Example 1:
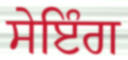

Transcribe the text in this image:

ਸੇਇੰਗ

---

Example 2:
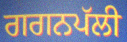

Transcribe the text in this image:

ਗਗਨਪੱਲੀ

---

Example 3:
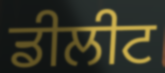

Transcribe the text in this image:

ਡੀਲੀਟ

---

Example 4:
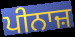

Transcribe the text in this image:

ਪੀਨਾਜ਼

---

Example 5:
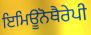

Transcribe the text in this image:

ਇਮਿਊਨੋਥੈਰੇਪੀ